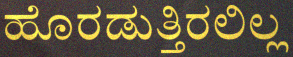
ಹೊರಡುತ್ತಿರಲಿಲ್ಲ